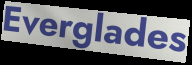
Everglades